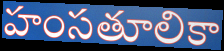
హంసతూలికా